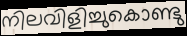
നിലവിളിച്ചുകൊണ്ടു